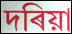
দৰিয়া